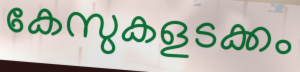
കേസുകളടക്കം